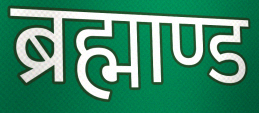
ब्रह्माण्ड